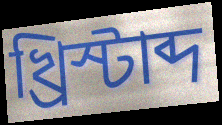
খ্রিস্টাব্দ